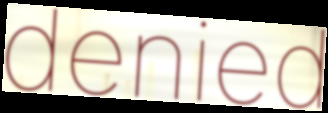
denied